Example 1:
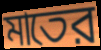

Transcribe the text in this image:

মাতের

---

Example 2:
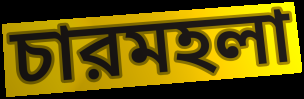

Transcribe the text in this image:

চারমহলা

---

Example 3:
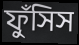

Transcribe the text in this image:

ফুঁসিস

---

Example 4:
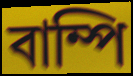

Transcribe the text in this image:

বাম্পি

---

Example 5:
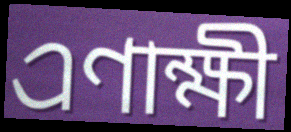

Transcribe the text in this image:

এণাক্ষী